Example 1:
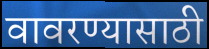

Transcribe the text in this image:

वावरण्यासाठी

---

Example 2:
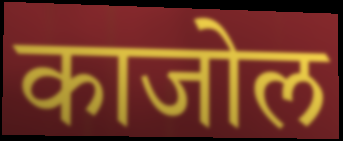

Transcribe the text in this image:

काजोल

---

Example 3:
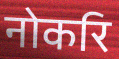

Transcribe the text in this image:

नोकरि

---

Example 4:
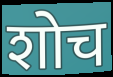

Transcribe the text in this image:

शोच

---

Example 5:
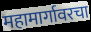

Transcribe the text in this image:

महामार्गावरचा